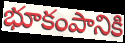
భూకంపానికి